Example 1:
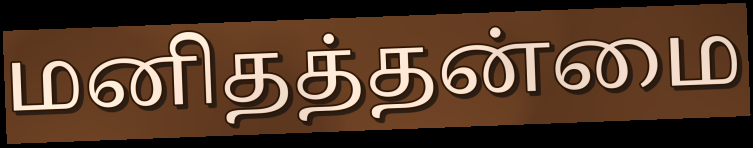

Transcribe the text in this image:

மனிதத்தன்மை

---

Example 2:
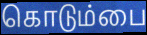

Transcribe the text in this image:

கொடும்பை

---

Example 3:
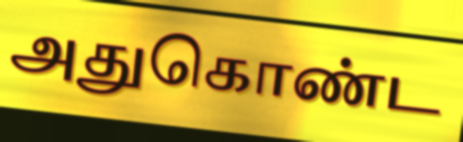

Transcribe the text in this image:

அதுகொண்ட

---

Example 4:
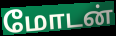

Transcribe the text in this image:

மோடன்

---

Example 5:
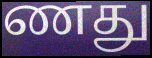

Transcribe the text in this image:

ணது